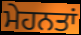
ਮੇਹਨਤਾਂ